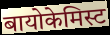
बायोकेमिस्ट